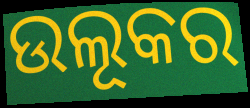
ଉଲୂକର